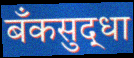
बँकसुद्धा